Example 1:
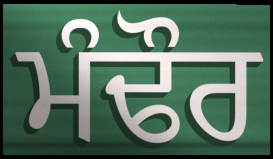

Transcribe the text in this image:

ਮੰਢੌਰ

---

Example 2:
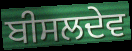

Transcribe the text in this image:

ਬੀਸਲਦੇਵ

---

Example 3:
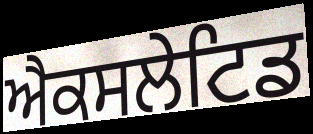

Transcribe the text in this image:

ਐਕਸਲੇਟਿਡ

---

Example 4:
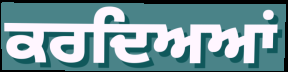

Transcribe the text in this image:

ਕਰਦਿਅਆਂ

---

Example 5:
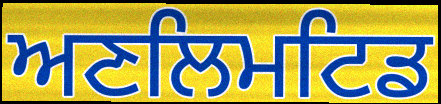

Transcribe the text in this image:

ਅਣਲਿਮਟਿਡ